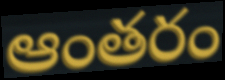
ఆంతరం